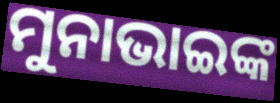
ମୁନାଭାଇଙ୍କ